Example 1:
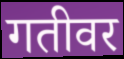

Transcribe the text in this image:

गतीवर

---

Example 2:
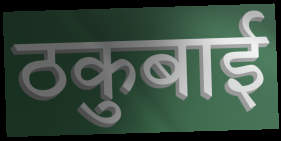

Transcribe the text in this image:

ठकुबाई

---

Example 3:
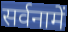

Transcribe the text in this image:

सर्वनामें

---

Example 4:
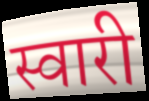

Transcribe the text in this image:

स्वारी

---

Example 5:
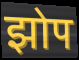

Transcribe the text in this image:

झोप